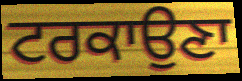
ਟਰਕਾਉਣਾ